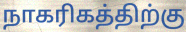
நாகரிகத்திற்கு